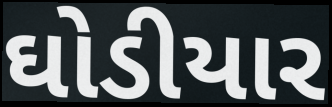
ઘોડીયાર